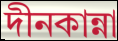
দীনকান্না